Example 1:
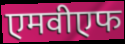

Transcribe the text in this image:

एमवीएफ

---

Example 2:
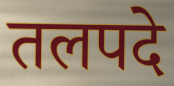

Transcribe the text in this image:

तलपदे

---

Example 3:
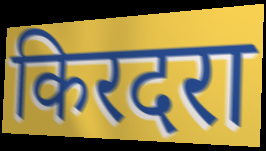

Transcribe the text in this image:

किरदरा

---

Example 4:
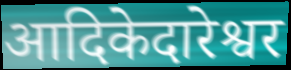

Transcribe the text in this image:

आदिकेदारेश्वर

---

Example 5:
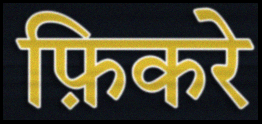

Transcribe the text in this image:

फ़िकरे